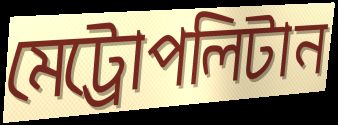
মেট্ৰোপলিটান